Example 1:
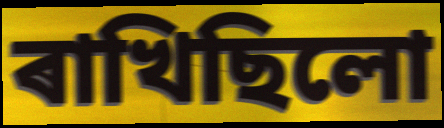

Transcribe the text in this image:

ৰাখিছিলো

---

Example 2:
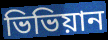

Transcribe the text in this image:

ভিভিয়ান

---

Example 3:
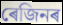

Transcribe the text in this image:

ৰেজিনৰ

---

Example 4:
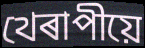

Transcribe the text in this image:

থেৰাপীয়ে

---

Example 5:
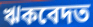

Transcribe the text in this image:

ঋকবেদত